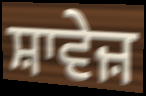
ਸ਼ਾਵੇਜ਼